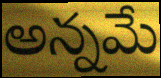
అన్నమే